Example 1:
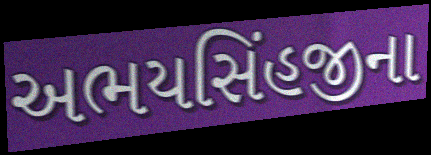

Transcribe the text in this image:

અભયસિંહજીના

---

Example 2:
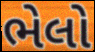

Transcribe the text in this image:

ભેલો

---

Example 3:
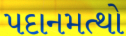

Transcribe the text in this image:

પદાનમત્થો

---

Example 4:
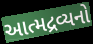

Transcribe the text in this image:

આત્મદ્રવ્યનો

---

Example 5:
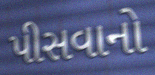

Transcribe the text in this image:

પીસવાનો